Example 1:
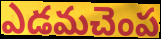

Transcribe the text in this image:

ఎడమచెంప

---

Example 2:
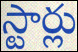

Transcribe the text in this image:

స్టార్లు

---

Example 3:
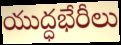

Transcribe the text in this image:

యుద్ధభేరీలు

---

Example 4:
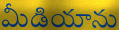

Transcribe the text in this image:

మీడియాను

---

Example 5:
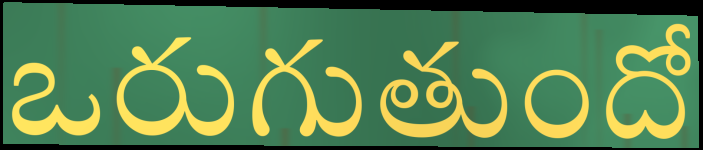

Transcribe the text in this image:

ఒరుగుతుందో